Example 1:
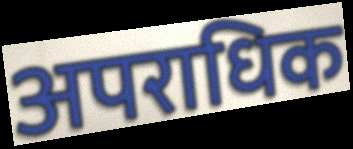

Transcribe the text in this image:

अपराधिक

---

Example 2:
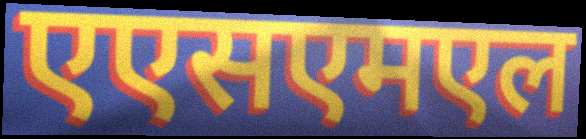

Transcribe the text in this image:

एएसएमएल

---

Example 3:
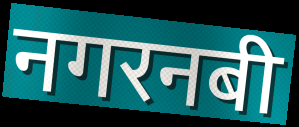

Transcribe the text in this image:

नगरनबी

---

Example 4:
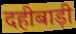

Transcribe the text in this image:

दहीबाड़ी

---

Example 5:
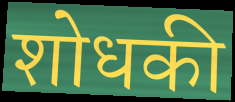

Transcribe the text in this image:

शोधकी